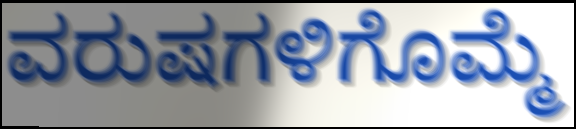
ವರುಷಗಳಿಗೊಮ್ಮೆ